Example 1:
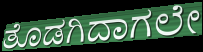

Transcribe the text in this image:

ತೊಡಗಿದಾಗಲೇ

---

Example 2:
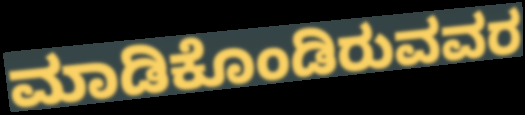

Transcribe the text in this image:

ಮಾಡಿಕೊಂಡಿರುವವರ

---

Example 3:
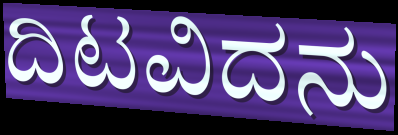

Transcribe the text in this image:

ದಿಟವಿದನು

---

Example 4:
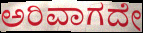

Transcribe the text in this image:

ಅರಿವಾಗದೇ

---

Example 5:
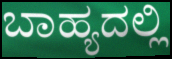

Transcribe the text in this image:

ಬಾಹ್ಯದಲ್ಲಿ